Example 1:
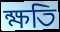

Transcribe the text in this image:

ক্ষতি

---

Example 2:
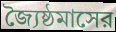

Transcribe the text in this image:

জ্যৈষ্ঠমাসের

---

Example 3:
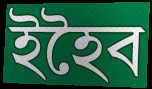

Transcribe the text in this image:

ইহৈব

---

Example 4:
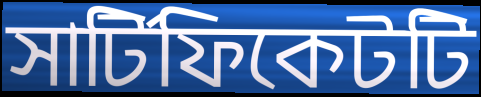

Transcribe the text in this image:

সার্টিফিকেটটি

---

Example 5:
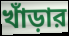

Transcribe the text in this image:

খাঁড়ার